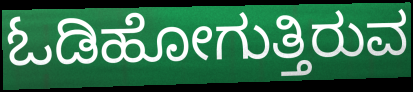
ಓಡಿಹೋಗುತ್ತಿರುವ